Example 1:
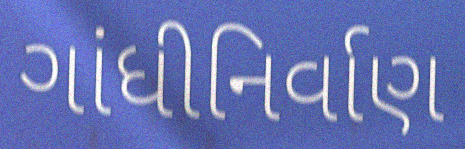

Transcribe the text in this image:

ગાંધીનિર્વાણ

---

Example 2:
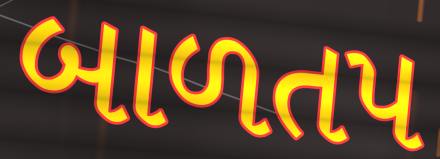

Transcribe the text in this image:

બાળતપ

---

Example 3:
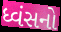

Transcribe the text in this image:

ધ્વંસનો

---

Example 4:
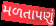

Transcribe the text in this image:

મળતાપણું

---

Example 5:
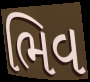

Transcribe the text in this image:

ભિવ